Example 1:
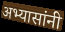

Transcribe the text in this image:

अभ्यासांनी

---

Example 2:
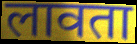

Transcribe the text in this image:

लावता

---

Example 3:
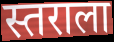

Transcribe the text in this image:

स्तराला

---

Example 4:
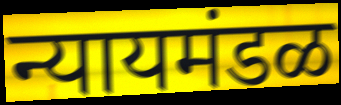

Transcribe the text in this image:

न्यायमंडळ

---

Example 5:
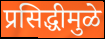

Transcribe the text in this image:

प्रसिद्धीमुळे